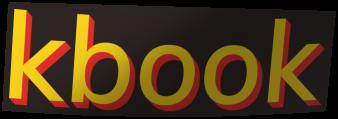
kbook